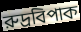
ৰুদ্ৰবিপাক